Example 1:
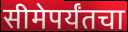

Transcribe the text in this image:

सीमेपर्यंतचा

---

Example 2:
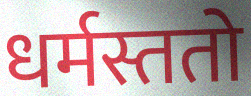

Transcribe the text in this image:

धर्मस्ततो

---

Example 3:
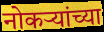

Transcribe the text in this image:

नोकऱ्यांच्या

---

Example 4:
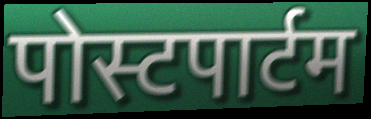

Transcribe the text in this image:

पोस्टपार्टम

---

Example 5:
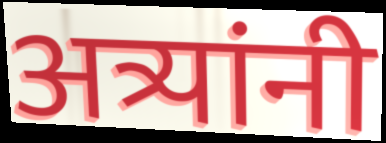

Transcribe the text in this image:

अत्र्यांनी